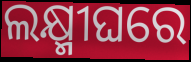
ଲକ୍ଷ୍ମୀଘରେ